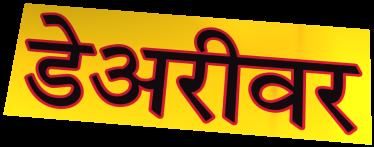
डेअरीवर